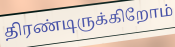
திரண்டிருக்கிறோம்